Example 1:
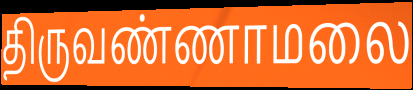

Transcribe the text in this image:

திருவண்ணாமலை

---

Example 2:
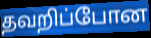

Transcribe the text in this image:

தவறிப்போன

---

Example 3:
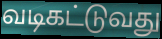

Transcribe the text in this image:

வடிகட்டுவது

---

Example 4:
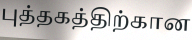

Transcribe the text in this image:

புத்தகத்திற்கான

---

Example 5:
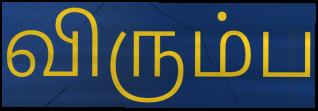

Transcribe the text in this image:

விரும்ப